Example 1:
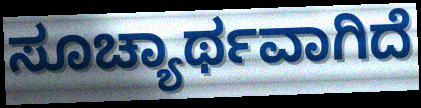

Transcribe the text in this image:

ಸೂಚ್ಯಾರ್ಥವಾಗಿದೆ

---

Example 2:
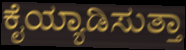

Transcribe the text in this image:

ಕೈಯ್ಯಾಡಿಸುತ್ತಾ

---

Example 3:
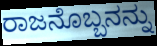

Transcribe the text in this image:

ರಾಜನೊಬ್ಬನನ್ನು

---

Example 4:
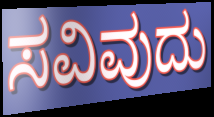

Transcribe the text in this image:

ಸವಿವುದು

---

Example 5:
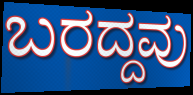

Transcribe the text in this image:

ಬರದ್ದವು